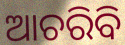
ଆଚରିବି